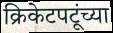
क्रिकेटपटूंच्या